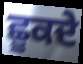
ਛੂਕਦੇ